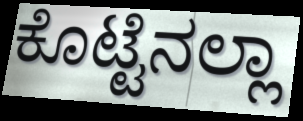
ಕೊಟ್ಟೆನಲ್ಲಾ